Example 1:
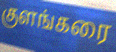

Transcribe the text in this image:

குளங்கரை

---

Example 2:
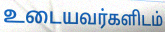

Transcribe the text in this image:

உடையவர்களிடம்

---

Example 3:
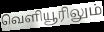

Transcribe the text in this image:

வெளியூரிலும்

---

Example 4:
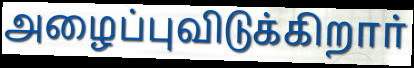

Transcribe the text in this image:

அழைப்புவிடுக்கிறார்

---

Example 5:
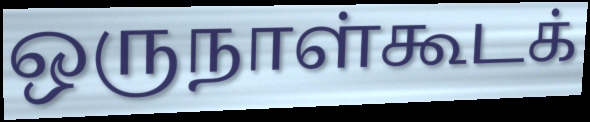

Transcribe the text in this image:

ஒருநாள்கூடக்